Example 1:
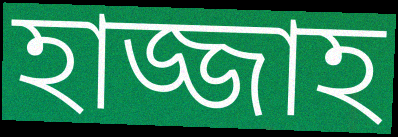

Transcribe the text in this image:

হাজ্জাহ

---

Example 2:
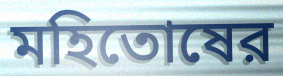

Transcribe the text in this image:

মহিতোষের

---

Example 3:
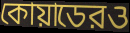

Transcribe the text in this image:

কোয়াডেরও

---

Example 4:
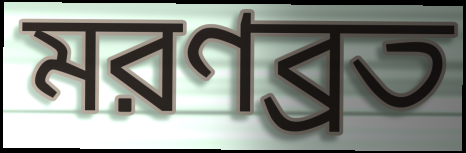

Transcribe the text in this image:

মরণব্রত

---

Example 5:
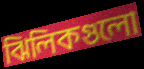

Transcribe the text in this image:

ঝিলিকগুলো